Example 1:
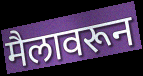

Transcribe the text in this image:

मैलावरून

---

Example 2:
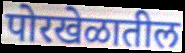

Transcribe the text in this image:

पोरखेळातील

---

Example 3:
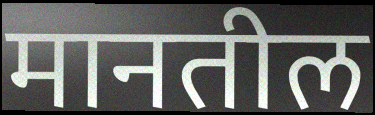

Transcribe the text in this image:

मानतील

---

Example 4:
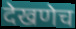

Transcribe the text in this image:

देखणेच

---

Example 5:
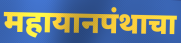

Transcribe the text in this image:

महायानपंथाचा